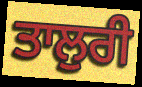
ਤਾਲੁਰੀ